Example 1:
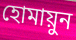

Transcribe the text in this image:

হোমায়ুন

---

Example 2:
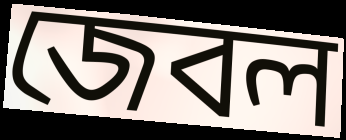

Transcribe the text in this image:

জেবল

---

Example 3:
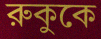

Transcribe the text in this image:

রুকুকে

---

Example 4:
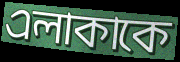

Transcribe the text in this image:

এলাকাকে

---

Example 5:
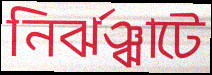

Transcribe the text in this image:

নির্ঝঞ্ঝাটে